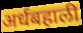
अर्धबहाली